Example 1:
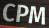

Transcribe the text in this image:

CPM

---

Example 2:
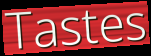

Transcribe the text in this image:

Tastes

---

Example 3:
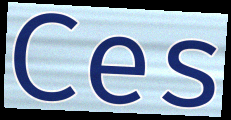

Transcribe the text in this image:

Ces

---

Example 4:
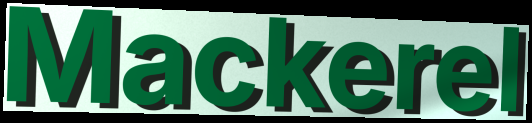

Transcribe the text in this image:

Mackerel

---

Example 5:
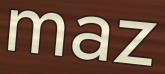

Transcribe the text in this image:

maz